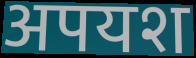
अपयश